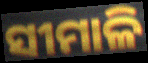
ସୀମାଳି